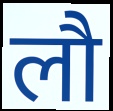
लौ